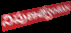
నిపుణత్వంబుఁ